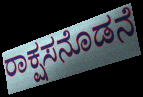
ರಾಕ್ಷಸನೊಡನೆ